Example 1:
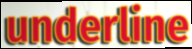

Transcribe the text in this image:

underline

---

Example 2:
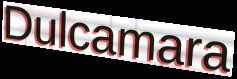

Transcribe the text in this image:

Dulcamara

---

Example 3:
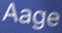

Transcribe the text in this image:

Aage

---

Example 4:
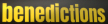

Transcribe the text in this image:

benedictions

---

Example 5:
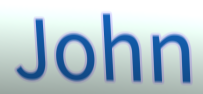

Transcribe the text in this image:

John